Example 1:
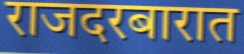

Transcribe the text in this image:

राजदरबारात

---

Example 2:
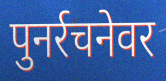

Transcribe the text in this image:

पुनर्रचनेवर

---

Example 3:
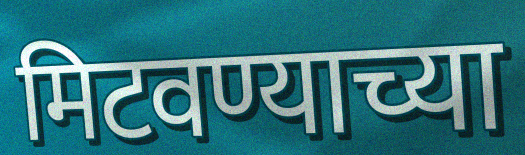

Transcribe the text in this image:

मिटवण्याच्या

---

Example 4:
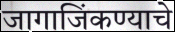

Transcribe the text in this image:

जागाजिंकण्याचे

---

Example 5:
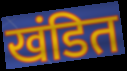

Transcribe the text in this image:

खंडित